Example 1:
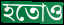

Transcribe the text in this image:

হতোও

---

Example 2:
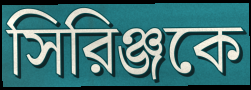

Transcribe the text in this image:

সিরিঞ্জকে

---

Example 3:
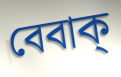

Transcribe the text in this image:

বেবাক্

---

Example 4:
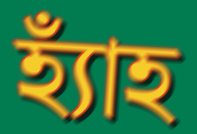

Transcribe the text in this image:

হ্যাঁহ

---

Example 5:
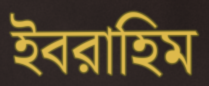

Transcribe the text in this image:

ইবরাহিম